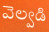
వెల్వడి